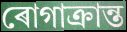
ৰোগাক্ৰান্ত